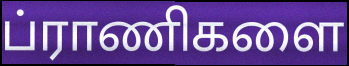
ப்ராணிகளை